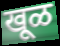
खूळ